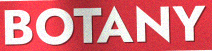
BOTANY